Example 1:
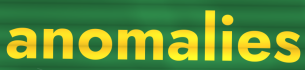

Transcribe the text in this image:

anomalies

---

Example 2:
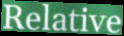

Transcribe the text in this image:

Relative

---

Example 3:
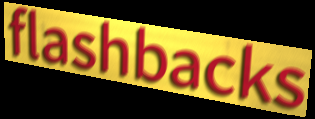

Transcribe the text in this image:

flashbacks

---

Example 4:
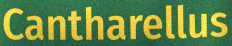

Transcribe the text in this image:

Cantharellus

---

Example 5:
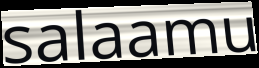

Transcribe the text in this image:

salaamu